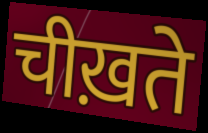
चीख़ते